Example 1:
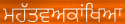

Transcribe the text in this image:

ਮਹੱਤਵਅਕਾਂਖਿਆ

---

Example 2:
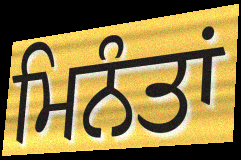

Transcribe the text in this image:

ਮਿਨੰਤਾਂ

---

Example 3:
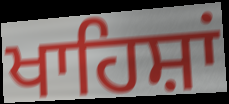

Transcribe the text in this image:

ਖਾਹਿਸ਼ਾਂ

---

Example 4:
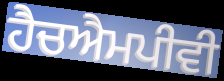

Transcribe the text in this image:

ਹੈਚਐਮਪੀਵੀ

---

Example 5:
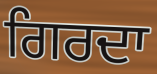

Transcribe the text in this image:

ਗਿਰਦਾ